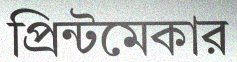
প্রিন্টমেকার